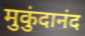
मुकुंदानंद